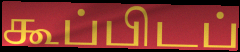
கூப்பிடப்